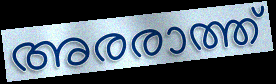
അരരാത്ത്